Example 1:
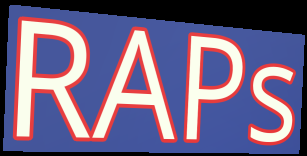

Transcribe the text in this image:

RAPs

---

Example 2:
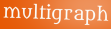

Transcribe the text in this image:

multigraph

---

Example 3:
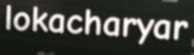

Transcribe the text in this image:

lokacharyar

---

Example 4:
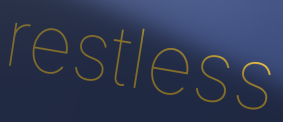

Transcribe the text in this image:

restless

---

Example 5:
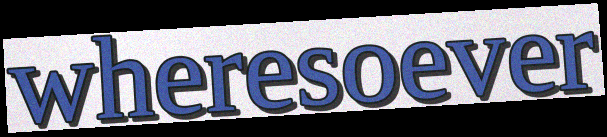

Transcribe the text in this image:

wheresoever